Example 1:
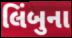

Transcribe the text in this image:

લિંબુના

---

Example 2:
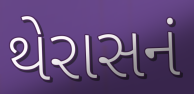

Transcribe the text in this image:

થેરાસનં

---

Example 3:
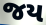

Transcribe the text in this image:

જય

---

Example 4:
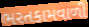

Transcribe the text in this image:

ભરતકામવાળી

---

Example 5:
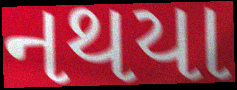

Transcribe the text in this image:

નથયા